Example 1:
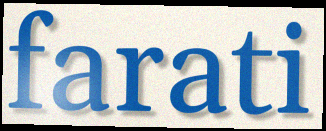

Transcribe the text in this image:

farati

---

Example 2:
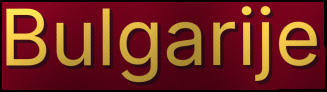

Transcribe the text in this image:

Bulgarije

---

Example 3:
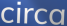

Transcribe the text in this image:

circa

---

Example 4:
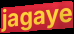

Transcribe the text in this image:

jagaye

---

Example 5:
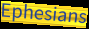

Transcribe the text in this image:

Ephesians